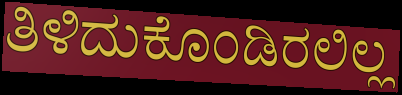
ತಿಳಿದುಕೊಂಡಿರಲಿಲ್ಲ